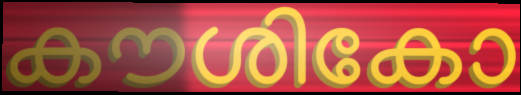
കൗശികോ